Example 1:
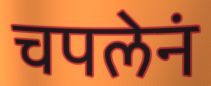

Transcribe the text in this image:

चपलेनं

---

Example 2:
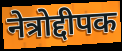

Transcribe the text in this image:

नेत्रोद्दीपक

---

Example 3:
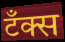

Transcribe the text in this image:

टँक्स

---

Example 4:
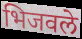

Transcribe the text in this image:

भिजवले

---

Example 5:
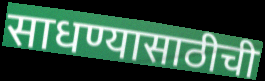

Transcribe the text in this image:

साधण्यासाठीची